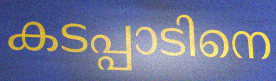
കടപ്പാടിനെ